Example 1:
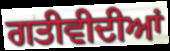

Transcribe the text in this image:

ਗਤੀਵੀਦੀਆਂ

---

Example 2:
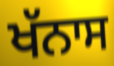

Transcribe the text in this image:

ਖੱਨਾਸ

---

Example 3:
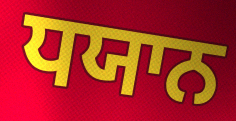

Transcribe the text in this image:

ਧਯਾਨ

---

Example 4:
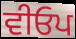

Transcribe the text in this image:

ਵੀਓਪ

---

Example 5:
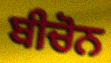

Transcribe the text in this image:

ਬੀਚੋਨ